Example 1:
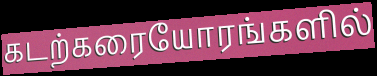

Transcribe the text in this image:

கடற்கரையோரங்களில்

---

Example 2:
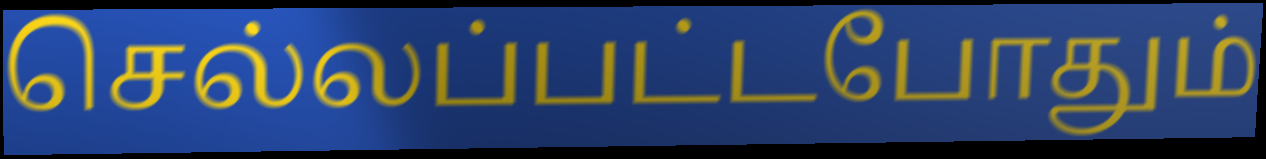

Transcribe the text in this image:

செல்லப்பட்டபோதும்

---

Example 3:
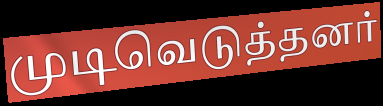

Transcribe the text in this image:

முடிவெடுத்தனர்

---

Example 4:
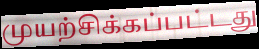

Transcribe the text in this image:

முயற்சிக்கப்பட்டது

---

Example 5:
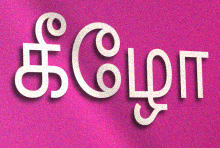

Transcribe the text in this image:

கீழோ